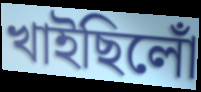
খাইছিলোঁ